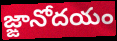
జ్ఙానోదయం